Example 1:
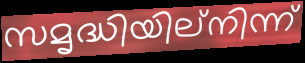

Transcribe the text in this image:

സമൃദ്ധിയില്നിന്ന്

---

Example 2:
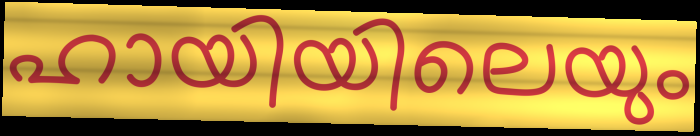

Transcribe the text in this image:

ഹായിയിലെയും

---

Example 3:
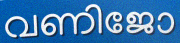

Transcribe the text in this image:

വണിജോ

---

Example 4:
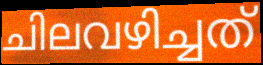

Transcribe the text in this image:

ചിലവഴിച്ചത്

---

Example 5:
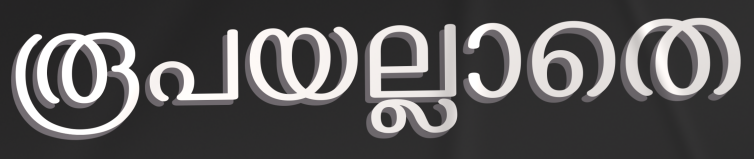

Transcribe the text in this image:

രൂപയല്ലാതെ